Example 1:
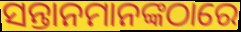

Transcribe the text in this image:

ସନ୍ତାନମାନଙ୍କଠାରେ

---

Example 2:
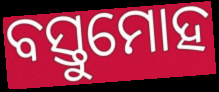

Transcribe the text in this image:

ବସ୍ତୁମୋହ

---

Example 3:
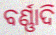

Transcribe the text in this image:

ବର୍ଣ୍ଣାଦି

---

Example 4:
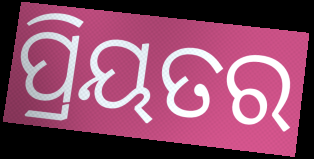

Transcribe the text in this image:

ପ୍ରିୟତର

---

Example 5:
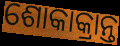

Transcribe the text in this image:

ଶୋକାକ୍ରାନ୍ତ